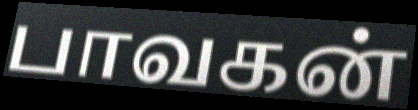
பாவகன்